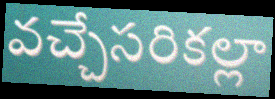
వచ్చేసరికల్లా